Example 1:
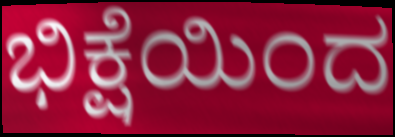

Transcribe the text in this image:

ಭಿಕ್ಷೆಯಿಂದ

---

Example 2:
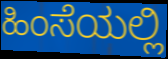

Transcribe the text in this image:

ಹಿಂಸೆಯಲ್ಲಿ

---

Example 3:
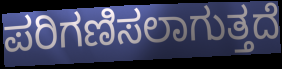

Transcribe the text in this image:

ಪರಿಗಣಿಸಲಾಗುತ್ತದೆ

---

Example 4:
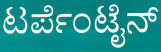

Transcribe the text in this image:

ಟರ್ಪೆಂಟೈನ್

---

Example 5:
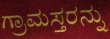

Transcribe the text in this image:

ಗ್ರಾಮಸ್ತರನ್ನು